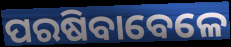
ପରଷିବାବେଳେ